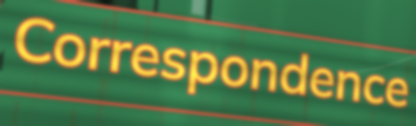
Correspondence